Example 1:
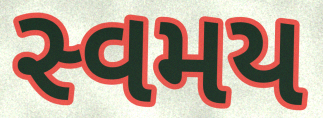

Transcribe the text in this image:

સ્વમય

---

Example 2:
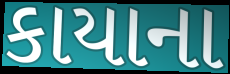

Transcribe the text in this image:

કાયાના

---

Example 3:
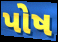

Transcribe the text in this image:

પોષ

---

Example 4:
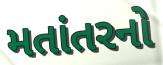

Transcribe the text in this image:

મતાંતરનો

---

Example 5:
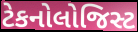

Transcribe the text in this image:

ટેકનોલોજિસ્ટ